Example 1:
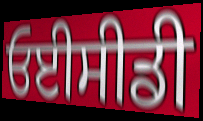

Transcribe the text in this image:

ਓਈਸੀਡੀ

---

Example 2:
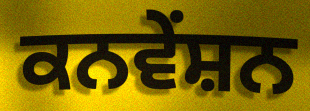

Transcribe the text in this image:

ਕਨਵੇਂਸ਼ਨ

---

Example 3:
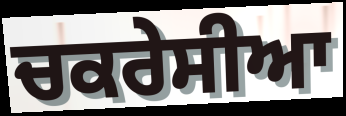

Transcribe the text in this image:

ਚਕਰੇਸੀਆ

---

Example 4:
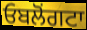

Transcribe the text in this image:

ਓਬਲੋਂਗਟਾ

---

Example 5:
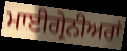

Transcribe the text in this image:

ਮਾਈਗ੍ਰੇਨੀਅਰਾਂ